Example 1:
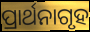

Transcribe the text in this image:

ପ୍ରାର୍ଥନାଗୃହ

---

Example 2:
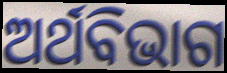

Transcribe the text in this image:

ଅର୍ଥବିଭାଗ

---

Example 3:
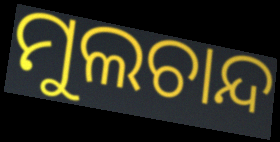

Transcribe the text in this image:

ମୁଲଚାନ୍ଦ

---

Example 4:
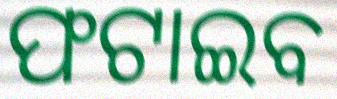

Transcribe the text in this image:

ଫଟାଇବ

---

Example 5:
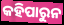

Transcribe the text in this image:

କହିପାରୁନ